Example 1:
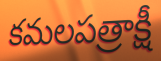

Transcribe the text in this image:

కమలపత్రాక్షీ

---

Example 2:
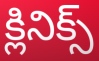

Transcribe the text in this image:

క్లినిక్స్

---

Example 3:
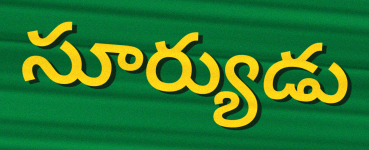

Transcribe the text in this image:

సూర్యుడు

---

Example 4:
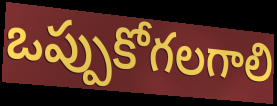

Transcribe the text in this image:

ఒప్పుకోగలగాలి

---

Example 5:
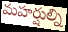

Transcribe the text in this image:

మహర్షుల్ని